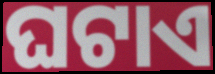
ଘଟାଏ